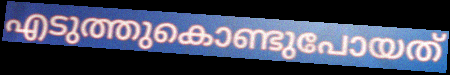
എടുത്തുകൊണ്ടുപോയത്